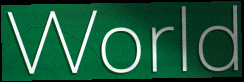
World